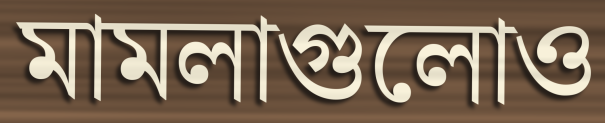
মামলাগুলোও